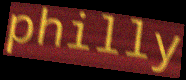
philly